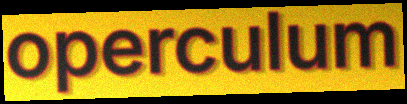
operculum